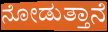
ನೋಡುತ್ತಾನೆ